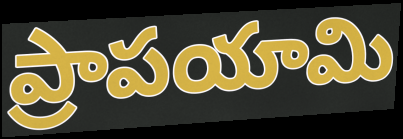
ప్రాపయామి